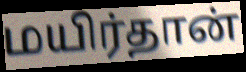
மயிர்தான்